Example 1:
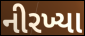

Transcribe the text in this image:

નીરખ્યા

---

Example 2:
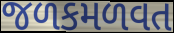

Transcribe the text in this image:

જળકમળવત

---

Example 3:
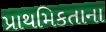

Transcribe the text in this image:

પ્રાથમિકતાના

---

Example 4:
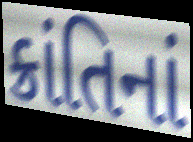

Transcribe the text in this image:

ક્રાંતિનાં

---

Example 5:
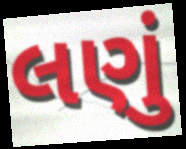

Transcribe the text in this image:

લણું